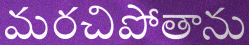
మరచిపోతాను